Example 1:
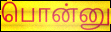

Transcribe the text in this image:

பொன்னு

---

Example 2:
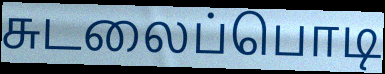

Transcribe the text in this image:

சுடலைப்பொடி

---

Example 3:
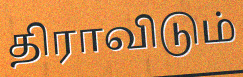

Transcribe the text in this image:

திராவிடும்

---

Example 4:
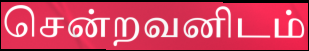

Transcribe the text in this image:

சென்றவனிடம்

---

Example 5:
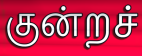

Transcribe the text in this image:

குன்றச்